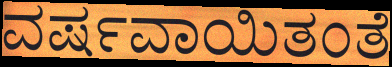
ವರ್ಷವಾಯಿತಂತೆ